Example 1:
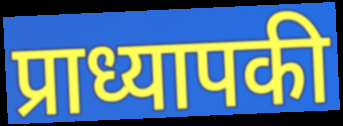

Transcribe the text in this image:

प्राध्यापकी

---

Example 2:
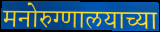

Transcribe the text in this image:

मनोरुग्णालयाच्या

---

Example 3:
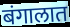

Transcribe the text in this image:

बंगालात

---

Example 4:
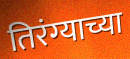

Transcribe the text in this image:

तिरंग्याच्या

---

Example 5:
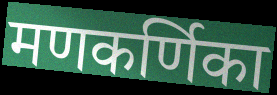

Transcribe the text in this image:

मणकर्णिका